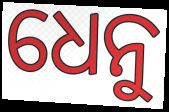
ଧେନୁ